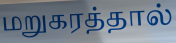
மறுகரத்தால்